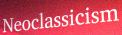
Neoclassicism